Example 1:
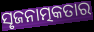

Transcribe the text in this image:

ସୃଜନାତ୍ମକତାର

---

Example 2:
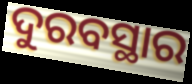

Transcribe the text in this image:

ଦୁରବସ୍ଥାର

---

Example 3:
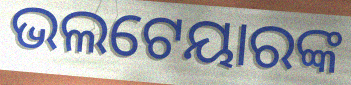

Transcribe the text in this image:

ଭଲଟେୟାରଙ୍କ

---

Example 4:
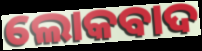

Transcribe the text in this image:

ଲୋକବାଦ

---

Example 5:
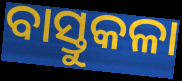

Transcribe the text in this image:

ବାସ୍ତୁକଳା